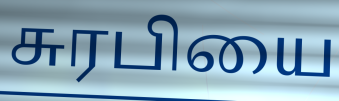
சுரபியை